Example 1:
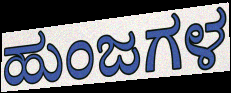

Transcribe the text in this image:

ಹುಂಜಗಳ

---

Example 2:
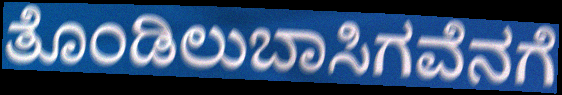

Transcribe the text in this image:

ತೊಂಡಿಲುಬಾಸಿಗವೆನಗೆ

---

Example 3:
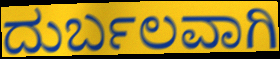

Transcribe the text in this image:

ದುರ್ಬಲವಾಗಿ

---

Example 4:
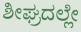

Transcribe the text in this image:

ಶೀಘ್ರದಲ್ಲೇ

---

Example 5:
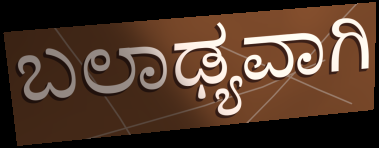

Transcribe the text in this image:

ಬಲಾಢ್ಯವಾಗಿ